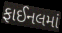
ફાઈનલમાં